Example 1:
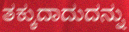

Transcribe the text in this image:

ತಕ್ಕುದಾದುದನ್ನು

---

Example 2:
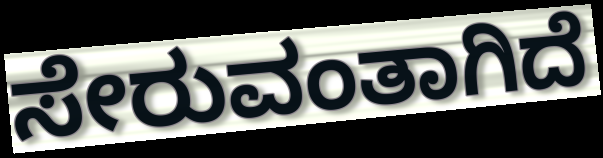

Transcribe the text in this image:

ಸೇರುವಂತಾಗಿದೆ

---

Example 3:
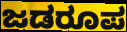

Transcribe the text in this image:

ಜಡರೂಪ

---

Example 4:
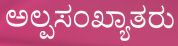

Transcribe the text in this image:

ಅಲ್ಪಸಂಖ್ಯಾತರು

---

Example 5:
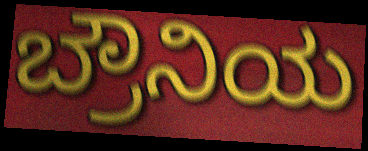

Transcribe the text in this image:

ಬ್ರೌನಿಯ